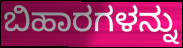
ಬಿಹಾರಗಳನ್ನು